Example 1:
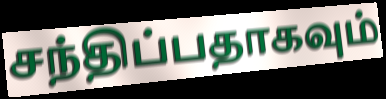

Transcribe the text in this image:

சந்திப்பதாகவும்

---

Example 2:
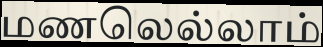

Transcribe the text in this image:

மணலெல்லாம்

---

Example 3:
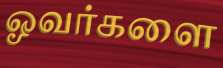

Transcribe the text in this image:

ஓவர்களை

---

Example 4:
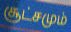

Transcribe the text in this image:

சூட்சமும்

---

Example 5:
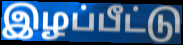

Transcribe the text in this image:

இழப்பீட்டு